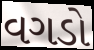
વગડો